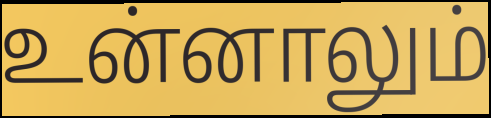
உன்னாலும்